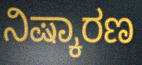
ನಿಷ್ಕಾರಣ